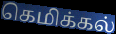
கெமிக்கல்